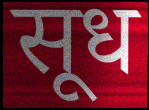
सूध